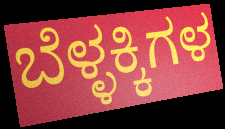
ಬೆಳ್ಳಕ್ಕಿಗಳ